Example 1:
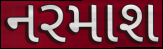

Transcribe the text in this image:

નરમાશ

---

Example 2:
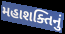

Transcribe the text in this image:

મહાશક્તિનું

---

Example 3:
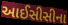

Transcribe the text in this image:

આઈસીસીના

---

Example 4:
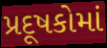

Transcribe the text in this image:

પ્રદૂષકોમાં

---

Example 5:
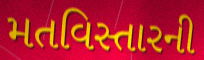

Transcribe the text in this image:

મતવિસ્તારની